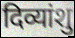
दिव्यांशु